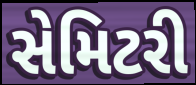
સેમિટરી